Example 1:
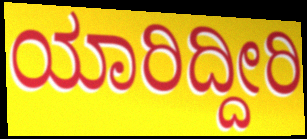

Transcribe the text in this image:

ಯಾರಿದ್ದೀರಿ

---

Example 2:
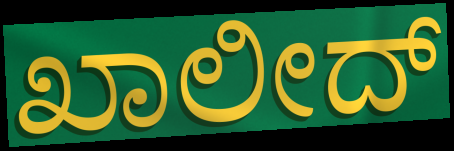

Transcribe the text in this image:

ಖಾಲೀದ್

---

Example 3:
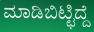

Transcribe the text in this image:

ಮಾಡಿಬಿಟ್ಟಿದ್ದೆ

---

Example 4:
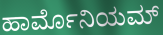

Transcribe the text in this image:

ಹಾರ್ಮೊನಿಯಮ್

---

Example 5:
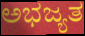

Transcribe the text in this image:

ಅಭಜ್ಯತ